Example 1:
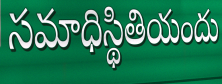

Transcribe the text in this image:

సమాధిస్థితియందు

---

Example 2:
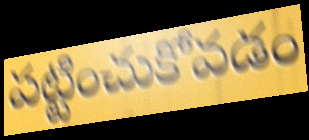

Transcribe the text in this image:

పట్టించుకోవడం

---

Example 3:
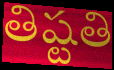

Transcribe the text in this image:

తిష్టతి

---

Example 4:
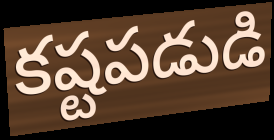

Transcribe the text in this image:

కష్టపడుడి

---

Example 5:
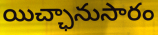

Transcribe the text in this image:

యిచ్ఛానుసారం